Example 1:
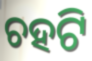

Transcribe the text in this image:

ଚହଟି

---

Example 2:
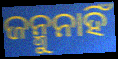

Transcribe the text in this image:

ଜନ୍ମୁନାହିଁ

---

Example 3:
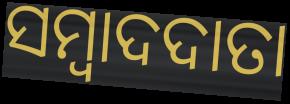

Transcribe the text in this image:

ସମ୍ବାଦଦାତା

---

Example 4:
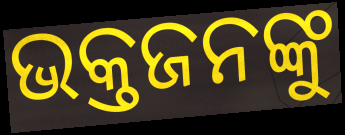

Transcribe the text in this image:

ଭକ୍ତଜନଙ୍କୁ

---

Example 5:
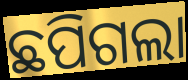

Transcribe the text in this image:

ଛପିଗଲା